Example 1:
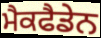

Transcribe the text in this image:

ਮੈਕਫੈਡੇਨ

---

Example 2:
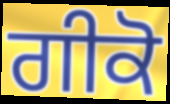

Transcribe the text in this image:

ਗੀਕੋ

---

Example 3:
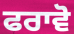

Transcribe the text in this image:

ਫਰਾਵੋ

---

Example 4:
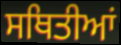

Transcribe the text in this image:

ਸਥਿਤੀਆਂ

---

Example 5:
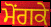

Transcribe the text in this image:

ਮੋਂਗਕੇ